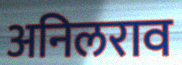
अनिलराव